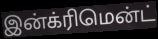
இன்க்ரிமென்ட்